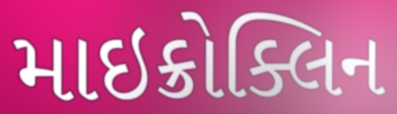
માઇક્રોક્લિન